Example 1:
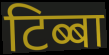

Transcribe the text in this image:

टिब्बा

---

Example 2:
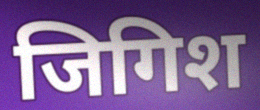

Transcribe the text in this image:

जिगिश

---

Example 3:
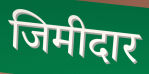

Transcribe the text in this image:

जिमीदार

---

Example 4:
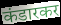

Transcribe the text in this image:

कंडारकर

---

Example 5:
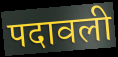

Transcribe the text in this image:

पदावली